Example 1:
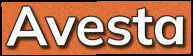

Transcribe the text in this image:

Avesta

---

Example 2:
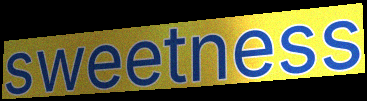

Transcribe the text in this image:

sweetness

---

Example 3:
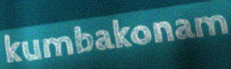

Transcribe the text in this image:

kumbakonam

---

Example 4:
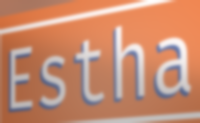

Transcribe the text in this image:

Estha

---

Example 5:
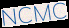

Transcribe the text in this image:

NCMC